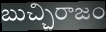
బుచ్చిరాజం